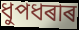
ধুপধৰাৰ